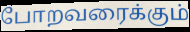
போறவரைக்கும்